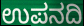
ಉಪನದಿ